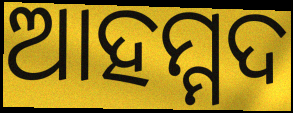
ଆହମ୍ମଦ